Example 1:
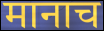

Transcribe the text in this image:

मानाच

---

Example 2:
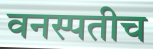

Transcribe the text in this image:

वनस्पतीच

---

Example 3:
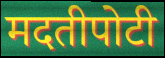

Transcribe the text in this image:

मदतीपोटी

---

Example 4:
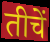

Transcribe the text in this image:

तीचें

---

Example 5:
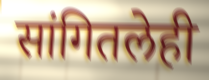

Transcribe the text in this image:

सांगितलेही